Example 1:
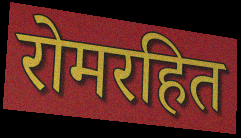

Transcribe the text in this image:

रोमरहित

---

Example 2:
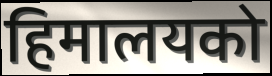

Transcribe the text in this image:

हिमालयको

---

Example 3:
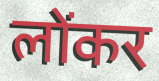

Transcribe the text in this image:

लोंकर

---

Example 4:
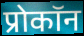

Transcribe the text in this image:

प्रोकॉन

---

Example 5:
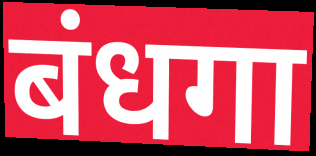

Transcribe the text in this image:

बंधगा